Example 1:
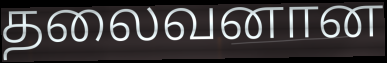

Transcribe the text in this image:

தலைவனான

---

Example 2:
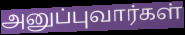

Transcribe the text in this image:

அனுப்புவார்கள்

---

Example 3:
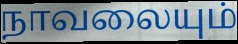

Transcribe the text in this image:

நாவலையும்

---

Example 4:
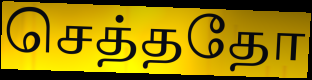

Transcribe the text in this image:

செத்ததோ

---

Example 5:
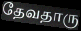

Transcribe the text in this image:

தேவதாரு